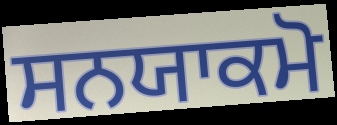
ਸਨਯਾਕਮੋ